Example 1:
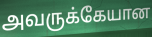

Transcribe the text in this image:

அவருக்கேயான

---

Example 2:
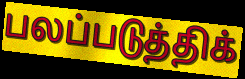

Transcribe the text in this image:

பலப்படுத்திக்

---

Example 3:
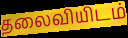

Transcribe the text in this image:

தலைவியிடம்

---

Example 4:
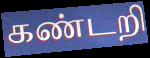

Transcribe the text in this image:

கண்டறி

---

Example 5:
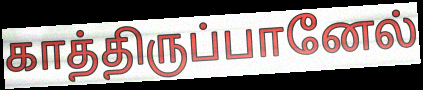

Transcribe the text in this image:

காத்திருப்பானேல்